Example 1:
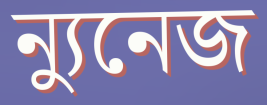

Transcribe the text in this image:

ন্যুনেজ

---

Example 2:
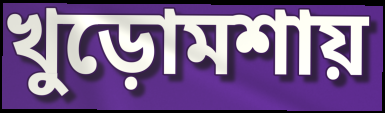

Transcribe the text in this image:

খুড়োমশায়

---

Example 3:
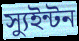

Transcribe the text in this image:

স্যুইন্টন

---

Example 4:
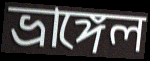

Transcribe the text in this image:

ভ্রাঙ্গেল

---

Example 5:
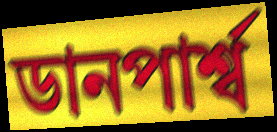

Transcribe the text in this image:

ডানপার্শ্ব